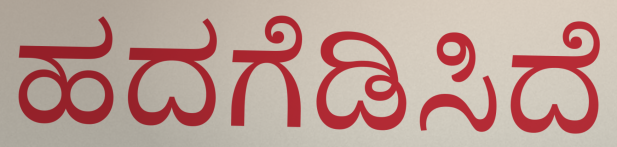
ಹದಗೆಡಿಸಿದೆ